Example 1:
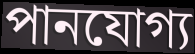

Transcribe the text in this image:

পানযোগ্য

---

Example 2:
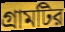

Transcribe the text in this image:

গ্রামটির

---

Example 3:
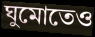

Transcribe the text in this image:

ঘুমোতেও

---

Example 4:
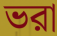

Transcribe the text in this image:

ভরা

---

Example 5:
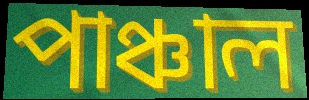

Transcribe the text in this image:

পাঞ্চাল